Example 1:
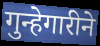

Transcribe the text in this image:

गुन्हेगारीने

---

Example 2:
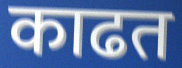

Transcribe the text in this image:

काढत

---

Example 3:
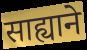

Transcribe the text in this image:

साह्याने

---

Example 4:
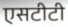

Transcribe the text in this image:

एसटीटी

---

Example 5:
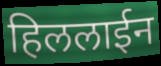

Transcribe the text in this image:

हिललाईन